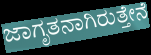
ಜಾಗೃತನಾಗಿರುತ್ತೇನೆ